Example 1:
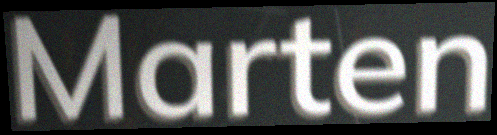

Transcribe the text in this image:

Marten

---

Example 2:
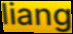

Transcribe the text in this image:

liang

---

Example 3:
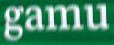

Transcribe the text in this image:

gamu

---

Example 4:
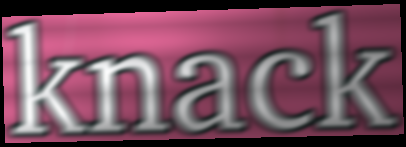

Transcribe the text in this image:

knack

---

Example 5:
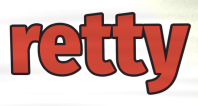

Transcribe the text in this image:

retty